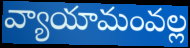
వ్యాయామంవల్ల